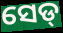
ସେଡ୍